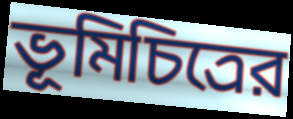
ভূমিচিত্রের